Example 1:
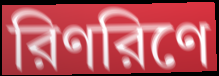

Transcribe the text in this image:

রিণরিণে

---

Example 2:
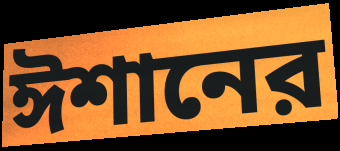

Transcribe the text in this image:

ঈশানের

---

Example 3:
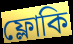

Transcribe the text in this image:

ফ্লোকি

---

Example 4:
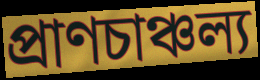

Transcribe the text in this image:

প্রাণচাঞ্চল্য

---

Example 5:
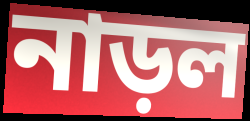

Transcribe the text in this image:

নাড়ল